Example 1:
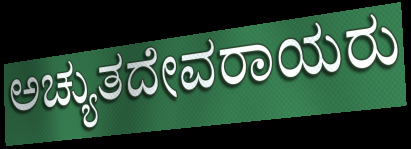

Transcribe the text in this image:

ಅಚ್ಯುತದೇವರಾಯರು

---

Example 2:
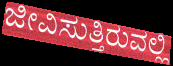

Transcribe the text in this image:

ಜೀವಿಸುತ್ತಿರುವಲ್ಲಿ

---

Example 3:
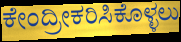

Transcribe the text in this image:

ಕೇಂದ್ರೀಕರಿಸಿಕೊಳ್ಳಲು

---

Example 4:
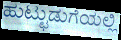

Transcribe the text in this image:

ಹುಟ್ಟುಡುಗೆಯಲ್ಲಿ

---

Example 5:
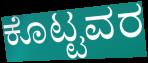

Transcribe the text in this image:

ಕೊಟ್ಟವರ